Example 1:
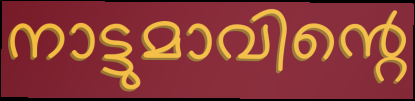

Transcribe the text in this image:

നാട്ടുമാവിന്റെ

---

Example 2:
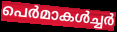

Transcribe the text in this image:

പെർമാകൾച്ചർ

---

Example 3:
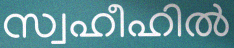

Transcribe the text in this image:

സ്വഹീഹിൽ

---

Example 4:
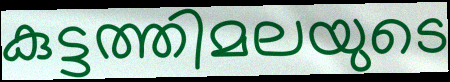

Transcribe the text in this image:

കുട്ടത്തിമലയുടെ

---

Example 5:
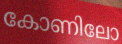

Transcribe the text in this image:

കോണിലോ